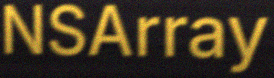
NSArray